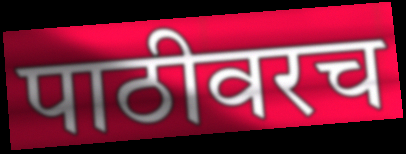
पाठीवरच